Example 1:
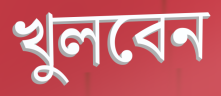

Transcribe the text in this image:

খুলবেন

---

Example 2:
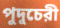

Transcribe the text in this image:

পুদুচেরী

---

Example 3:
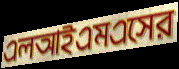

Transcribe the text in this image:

এলআইএমএসের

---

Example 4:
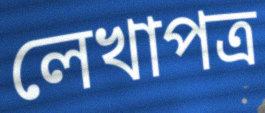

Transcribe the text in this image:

লেখাপত্র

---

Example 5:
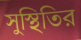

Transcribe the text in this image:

সুস্থিতির